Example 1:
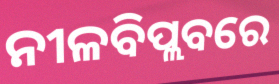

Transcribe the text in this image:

ନୀଳବିପ୍ଲବରେ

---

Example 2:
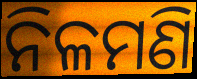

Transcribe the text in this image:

ନିଳମଣି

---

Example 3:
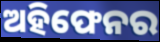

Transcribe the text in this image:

ଅହିଫେନର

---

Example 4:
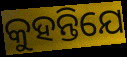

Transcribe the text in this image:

କୁହନ୍ତିଯେ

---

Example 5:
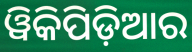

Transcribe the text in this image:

ୱିକିପିଡ଼ିଆର